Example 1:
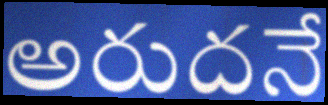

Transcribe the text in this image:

అరుదనే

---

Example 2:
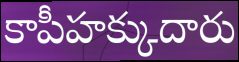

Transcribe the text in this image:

కాపీహక్కుదారు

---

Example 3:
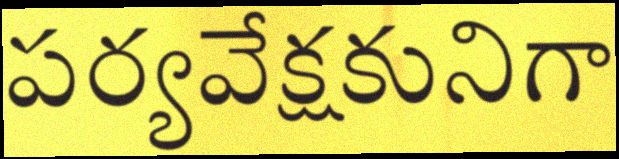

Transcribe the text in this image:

పర్యవేక్షకునిగా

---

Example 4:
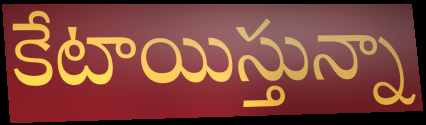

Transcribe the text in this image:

కేటాయిస్తున్నా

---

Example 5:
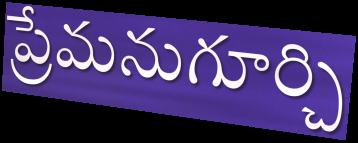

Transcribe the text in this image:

ప్రేమనుగూర్చి